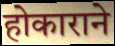
होकाराने